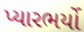
પ્યારભર્યો